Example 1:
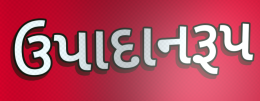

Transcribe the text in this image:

ઉપાદાનરૂપ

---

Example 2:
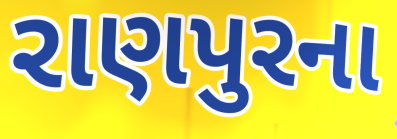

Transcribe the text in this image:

રાણપુરના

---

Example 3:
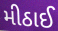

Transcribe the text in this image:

મીઠાઈ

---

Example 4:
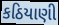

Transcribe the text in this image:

કઠિયાણી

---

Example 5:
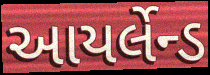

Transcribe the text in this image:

આયર્લેન્ડ